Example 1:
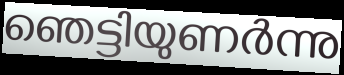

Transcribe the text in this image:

ഞെട്ടിയുണർന്നു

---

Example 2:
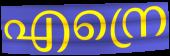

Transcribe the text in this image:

എന്രെ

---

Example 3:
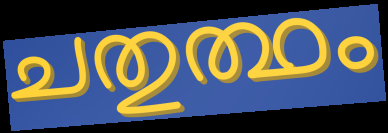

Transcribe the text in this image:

ചതുത്ഥം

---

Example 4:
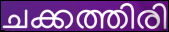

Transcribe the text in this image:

ചക്കത്തിരി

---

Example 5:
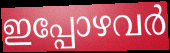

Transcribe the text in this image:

ഇപ്പോഴവർ